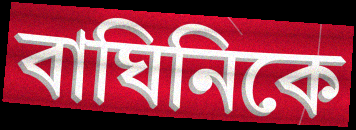
বাঘিনিকে